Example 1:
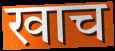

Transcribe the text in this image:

खाच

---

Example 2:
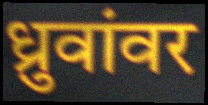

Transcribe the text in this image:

ध्रुवांवर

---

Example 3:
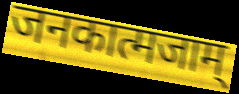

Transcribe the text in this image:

जनकात्मजाम्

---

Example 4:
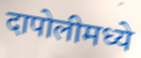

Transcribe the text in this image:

दापोलीमध्ये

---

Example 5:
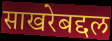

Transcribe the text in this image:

साखरेबद्दल